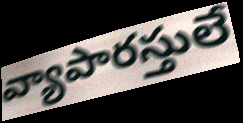
వ్యాపారస్తులే